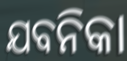
ଯବନିକା